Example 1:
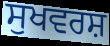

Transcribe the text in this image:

ਸੁਖਵਰਸ਼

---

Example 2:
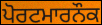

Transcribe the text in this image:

ਪੋਰਟਮਾਰਨੌਕ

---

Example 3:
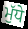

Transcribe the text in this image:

ਮੁੱਧੇ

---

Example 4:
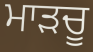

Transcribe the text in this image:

ਮਾੜਚੂ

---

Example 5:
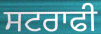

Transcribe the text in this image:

ਸਟਰਾਫੀ